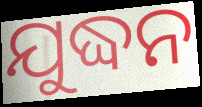
ଯୁଦ୍ଧନ